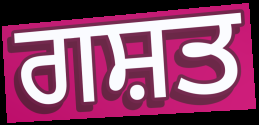
ਗਸ਼ਤ